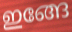
ഇങ്ങേ